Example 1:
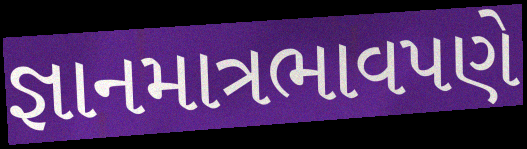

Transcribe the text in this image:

જ્ઞાનમાત્રભાવપણે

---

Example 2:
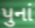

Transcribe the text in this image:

પુનાં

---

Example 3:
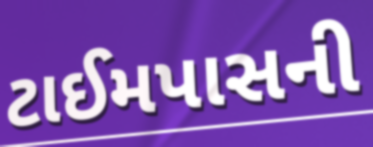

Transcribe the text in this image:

ટાઈમપાસની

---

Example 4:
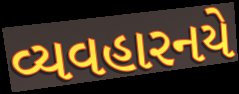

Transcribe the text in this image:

વ્યવહારનયે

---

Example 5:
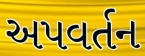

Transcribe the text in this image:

અપવર્તન